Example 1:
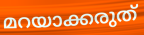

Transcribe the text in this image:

മറയാക്കരുത്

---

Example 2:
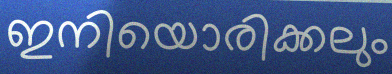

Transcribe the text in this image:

ഇനിയൊരിക്കലും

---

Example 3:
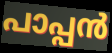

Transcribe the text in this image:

പാപ്പൻ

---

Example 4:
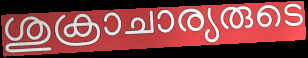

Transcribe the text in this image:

ശുക്രാചാര്യരുടെ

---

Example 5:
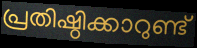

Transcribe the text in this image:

പ്രതിഷ്ഠിക്കാറുണ്ട്